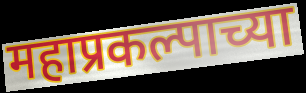
महाप्रकल्पाच्या